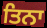
ਤਿਨਾ